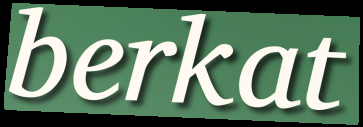
berkat